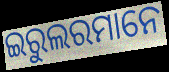
ଇରୁଲରମାନେ